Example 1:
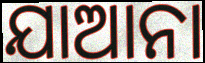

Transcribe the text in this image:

ଯାଆନା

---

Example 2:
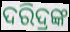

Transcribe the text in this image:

ଦରିଦ୍ରଙ୍କ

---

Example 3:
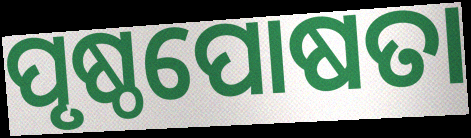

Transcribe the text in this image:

ପୃଷ୍ଠପୋଷତା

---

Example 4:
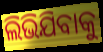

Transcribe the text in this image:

ଲିଭିଯିବାକୁ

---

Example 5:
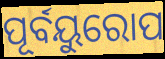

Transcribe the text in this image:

ପୂର୍ବୟୁରୋପ